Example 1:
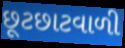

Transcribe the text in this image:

છૂટછાટવાળી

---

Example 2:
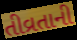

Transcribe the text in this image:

તીવ્રતાની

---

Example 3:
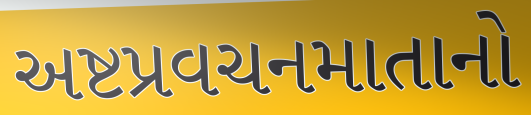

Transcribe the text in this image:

અષ્ટપ્રવચનમાતાનો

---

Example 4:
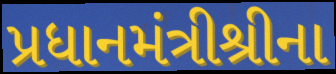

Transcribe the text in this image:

પ્રધાનમંત્રીશ્રીના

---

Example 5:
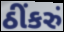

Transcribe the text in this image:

ઠીંકરું